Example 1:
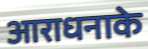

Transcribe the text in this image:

आराधनाके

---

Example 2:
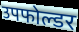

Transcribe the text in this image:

उपफोल्डर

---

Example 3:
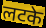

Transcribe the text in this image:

लटके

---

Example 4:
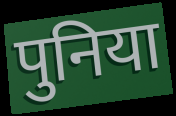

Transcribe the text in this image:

पुनिया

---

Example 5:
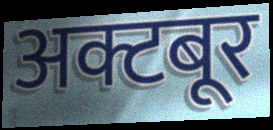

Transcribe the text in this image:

अक्टबूर